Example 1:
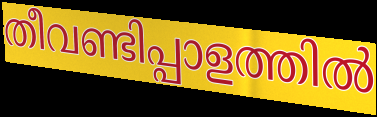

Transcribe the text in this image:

തീവണ്ടിപ്പാളത്തിൽ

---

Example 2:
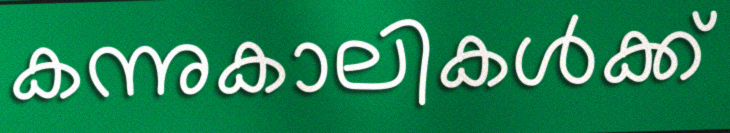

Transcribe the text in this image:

കന്നുകാലികൾക്ക്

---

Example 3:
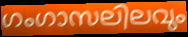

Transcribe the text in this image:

ഗംഗാസലിലവും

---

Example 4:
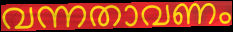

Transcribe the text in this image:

വന്നതാവണം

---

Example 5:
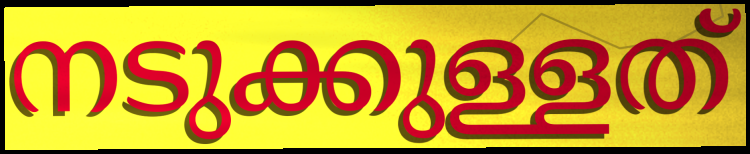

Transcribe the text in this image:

നടുക്കുള്ളത്